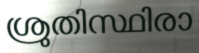
ശ്രുതിസ്ഥിരാ